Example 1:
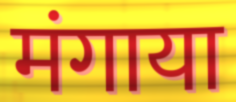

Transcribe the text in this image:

मंगाया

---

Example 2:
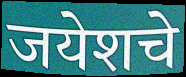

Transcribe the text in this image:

जयेशचे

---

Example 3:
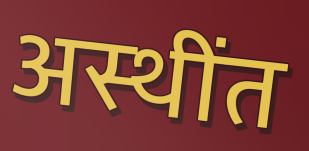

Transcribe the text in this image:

अस्थींत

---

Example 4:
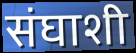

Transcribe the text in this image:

संघाशी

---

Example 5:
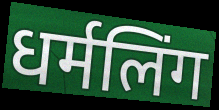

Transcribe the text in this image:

धर्मलिंग